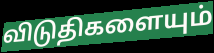
விடுதிகளையும்